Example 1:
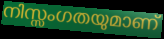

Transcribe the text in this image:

നിസ്സംഗതയുമാണ്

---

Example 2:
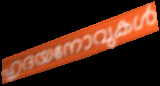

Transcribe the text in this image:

ഹൃദയനോവുകൾ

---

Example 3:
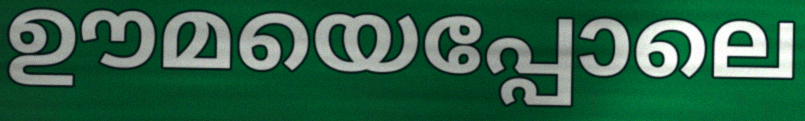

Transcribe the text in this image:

ഊമയെപ്പോലെ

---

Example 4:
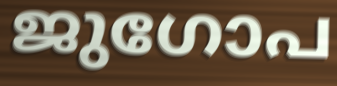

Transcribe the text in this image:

ജുഗോപ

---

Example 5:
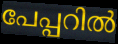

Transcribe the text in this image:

പേപ്പറിൽ